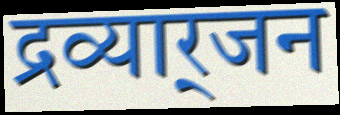
द्रव्यार्जन